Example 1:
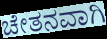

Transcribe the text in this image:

ಚೇತನವಾಗಿ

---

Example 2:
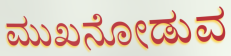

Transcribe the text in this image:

ಮುಖನೋಡುವ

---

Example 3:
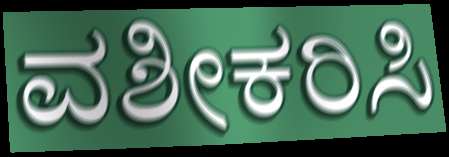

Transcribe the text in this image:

ವಶೀಕರಿಸಿ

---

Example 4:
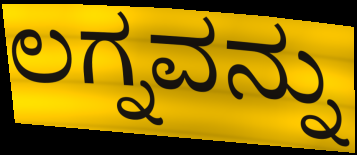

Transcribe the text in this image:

ಲಗ್ನವನ್ನು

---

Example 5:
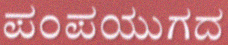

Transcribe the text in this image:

ಪಂಪಯುಗದ